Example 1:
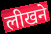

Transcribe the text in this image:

लीखने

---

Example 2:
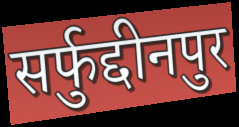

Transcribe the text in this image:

सर्फुद्दीनपुर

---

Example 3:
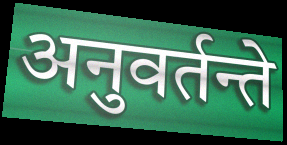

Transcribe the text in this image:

अनुवर्तन्ते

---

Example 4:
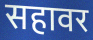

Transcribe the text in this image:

सहावर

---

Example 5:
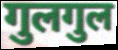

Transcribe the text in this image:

गुलगुल